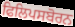
ਫਿਲਿਪਸਬੋਰਨ